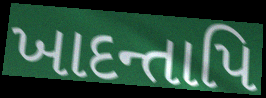
ખાદન્તાપિ